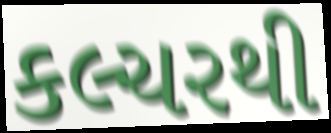
કલ્ચરથી